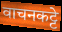
वाचनकट्टे